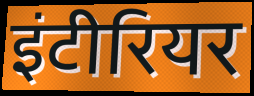
इंटीरियर